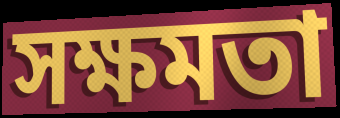
সক্ষমতা